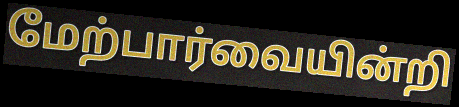
மேற்பார்வையின்றி